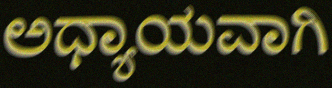
ಅಧ್ಯಾಯವಾಗಿ